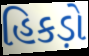
હિકડ઼ો